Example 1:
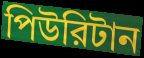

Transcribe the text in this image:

পিউরিটান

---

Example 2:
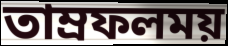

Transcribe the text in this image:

তাম্রফলময়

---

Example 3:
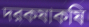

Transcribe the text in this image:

দরকষাকষি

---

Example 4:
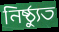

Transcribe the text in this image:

নিষ্ঠ্যুত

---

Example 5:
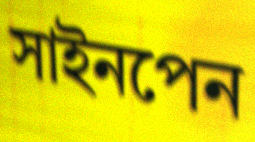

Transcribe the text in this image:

সাইনপেন